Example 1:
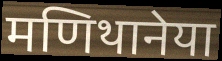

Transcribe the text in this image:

मणिथानेया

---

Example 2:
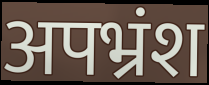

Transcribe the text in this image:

अपभ्रंश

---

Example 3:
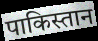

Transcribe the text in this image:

पाकिस्‍तान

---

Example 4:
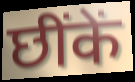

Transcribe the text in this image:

छींकें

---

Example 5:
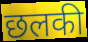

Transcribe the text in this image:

छलकी